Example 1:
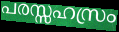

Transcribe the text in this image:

പരസ്സഹസ്രം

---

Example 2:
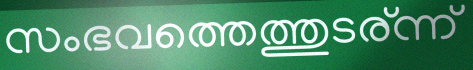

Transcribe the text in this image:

സംഭവത്തെത്തുടര്ന്ന്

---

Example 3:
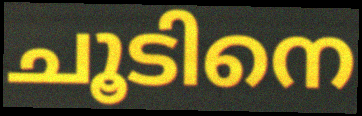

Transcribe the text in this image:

ചൂടിനെ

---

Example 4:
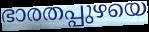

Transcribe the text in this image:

ഭാരതപ്പുഴയെ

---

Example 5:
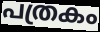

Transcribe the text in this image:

പത്രകം